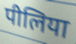
पीलिया